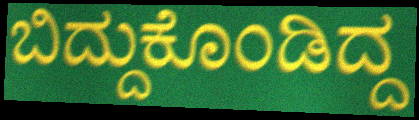
ಬಿದ್ದುಕೊಂಡಿದ್ದ